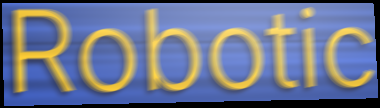
Robotic